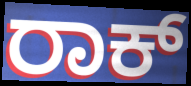
ರಾಕ್